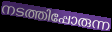
നടത്തിപ്പോരുന്ന